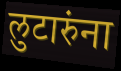
लुटारुंना